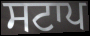
ਸਟਾਪ